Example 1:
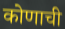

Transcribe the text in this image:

कोणाची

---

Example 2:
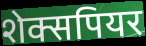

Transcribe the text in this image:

शेक्सपियर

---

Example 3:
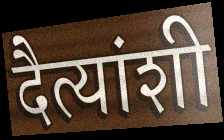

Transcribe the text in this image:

दैत्यांशी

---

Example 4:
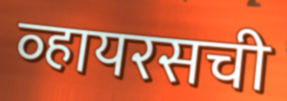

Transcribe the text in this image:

व्हायरसची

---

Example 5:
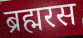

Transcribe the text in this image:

ब्रह्मरस